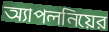
অ্যাপলনিয়ের